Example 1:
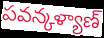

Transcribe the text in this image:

పవన్కళ్యాణ్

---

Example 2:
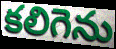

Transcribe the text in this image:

కలిగెను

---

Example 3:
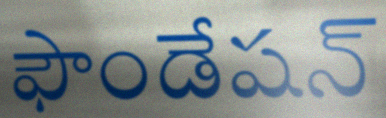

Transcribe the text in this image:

ఫౌండేషన్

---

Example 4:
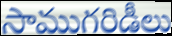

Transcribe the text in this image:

సాముగరిడీలు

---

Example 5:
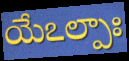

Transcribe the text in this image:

యేఽల్పాః